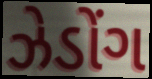
ઝેડોંગ